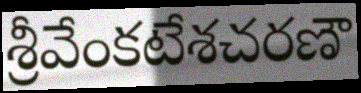
శ్రీవేంకటేశచరణౌ